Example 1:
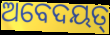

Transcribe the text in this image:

ଅବେଦୟତ୍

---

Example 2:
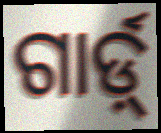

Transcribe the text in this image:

ଗାର୍ଡ଼୍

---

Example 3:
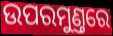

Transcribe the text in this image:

ଉପରମୁଣ୍ତରେ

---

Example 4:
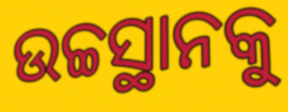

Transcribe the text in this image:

ଉଚ୍ଚସ୍ଥାନକୁ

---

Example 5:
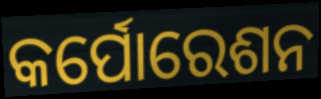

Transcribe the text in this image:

କର୍ପୋରେଶନ